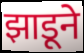
झाडूने